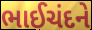
ભાઈચંદને